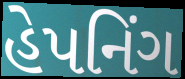
હેપનિંગ